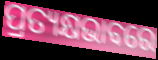
ପ୍ରତ୍ୟକ୍ଷଭାବରେ